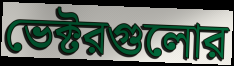
ভেক্টরগুলোর